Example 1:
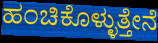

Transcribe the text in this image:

ಹಂಚಿಕೊಳ್ಳುತ್ತೇನೆ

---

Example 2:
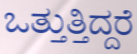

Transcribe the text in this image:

ಒತ್ತುತ್ತಿದ್ದರೆ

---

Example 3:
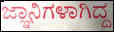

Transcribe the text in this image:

ಜ್ಞಾನಿಗಳಾಗಿದ್ದ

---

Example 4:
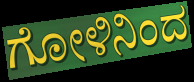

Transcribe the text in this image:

ಗೋಳಿನಿಂದ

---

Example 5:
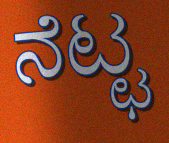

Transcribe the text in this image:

ನೆಟ್ಟ